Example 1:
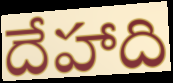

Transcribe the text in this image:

దేహాది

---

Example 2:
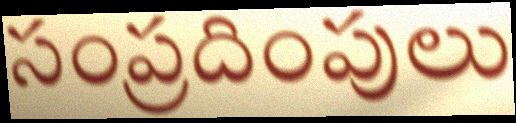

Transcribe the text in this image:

సంప్రదింపులు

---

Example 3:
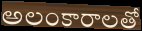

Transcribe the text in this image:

అలంకారాలతో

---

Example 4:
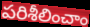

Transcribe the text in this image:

పరిశీలించాం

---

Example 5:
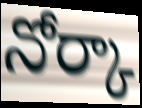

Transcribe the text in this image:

నోర్కా